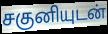
சகுனியுடன்